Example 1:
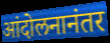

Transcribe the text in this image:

आंदोलनानंतर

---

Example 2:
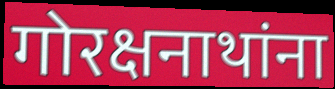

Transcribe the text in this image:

गोरक्षनाथांना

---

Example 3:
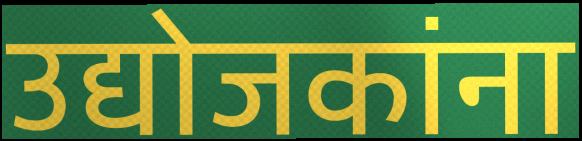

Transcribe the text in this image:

उद्योजकांना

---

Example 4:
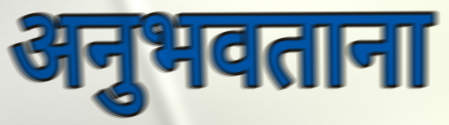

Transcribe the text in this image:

अनुभवताना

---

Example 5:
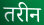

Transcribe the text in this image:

तरीन